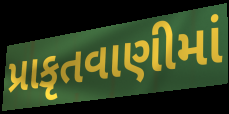
પ્રાકૃતવાણીમાં